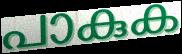
പാകുക